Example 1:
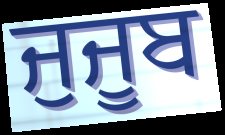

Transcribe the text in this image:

ਜੁਜੂਬ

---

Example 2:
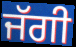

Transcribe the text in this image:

ਜੱਗੀ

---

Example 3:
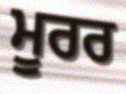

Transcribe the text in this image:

ਮੂਰਰ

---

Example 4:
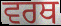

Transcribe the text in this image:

ਵਰਥ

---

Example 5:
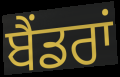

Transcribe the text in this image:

ਬੈਂਡਰਾਂ